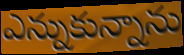
ఎన్నుకున్నాను